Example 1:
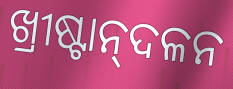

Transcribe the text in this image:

ଖ୍ରୀଷ୍ଟାନ୍‌ଦଳନ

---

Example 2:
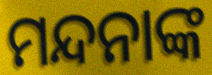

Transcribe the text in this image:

ମନ୍ଦନାଙ୍କ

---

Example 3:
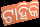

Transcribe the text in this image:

ଟାହିକି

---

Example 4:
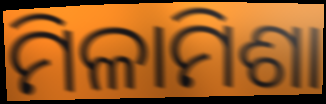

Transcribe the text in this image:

ମିଳାମିଶା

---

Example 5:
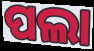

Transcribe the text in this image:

ପଲା